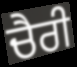
ਚੈਰੀ